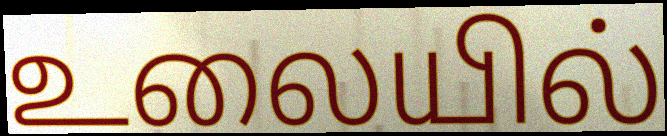
உலையில்